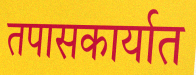
तपासकार्यात